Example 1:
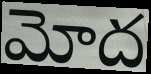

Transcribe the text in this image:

మోద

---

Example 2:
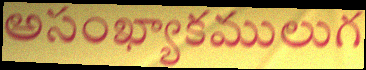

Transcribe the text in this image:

అసంఖ్యాకములుగ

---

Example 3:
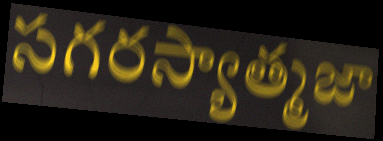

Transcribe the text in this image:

సగరస్యాత్మజా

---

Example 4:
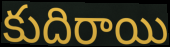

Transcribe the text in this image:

కుదిరాయి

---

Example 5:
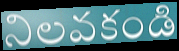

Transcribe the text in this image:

నిలవకండి